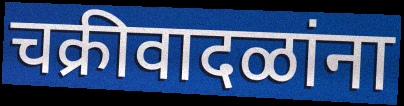
चक्रीवादळांना